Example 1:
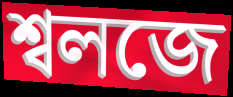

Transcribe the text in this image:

শ্বলজে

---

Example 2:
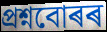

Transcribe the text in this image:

প্ৰশ্নবোৰৰ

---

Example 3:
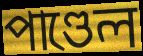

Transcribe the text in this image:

পাণ্ডেল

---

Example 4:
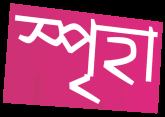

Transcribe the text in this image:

স্পৃহা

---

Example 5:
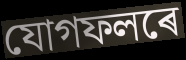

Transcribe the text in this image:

যোগফলৰে